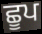
ਛੂਪ